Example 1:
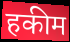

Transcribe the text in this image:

हकीम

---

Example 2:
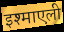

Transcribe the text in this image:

इश्माएली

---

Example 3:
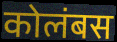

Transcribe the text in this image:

कोलंबस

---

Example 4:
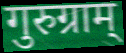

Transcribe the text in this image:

गुरुग्राम्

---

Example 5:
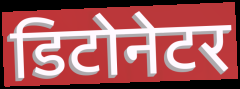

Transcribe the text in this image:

डिटोनेटर